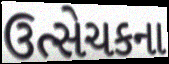
ઉત્સેચકના